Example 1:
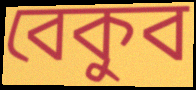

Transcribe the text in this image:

বেকুব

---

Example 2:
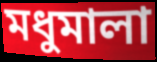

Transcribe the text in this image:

মধুমালা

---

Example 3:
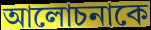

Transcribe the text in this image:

আলোচনাকে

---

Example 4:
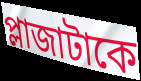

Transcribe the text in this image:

প্লাজাটাকে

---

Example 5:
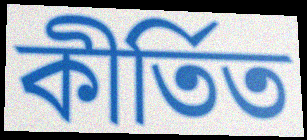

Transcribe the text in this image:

কীর্তিত